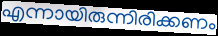
എന്നായിരുന്നിരിക്കണം